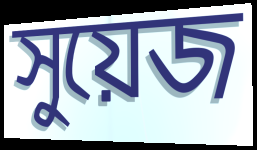
সুয়েজ